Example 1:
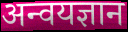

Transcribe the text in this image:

अन्वयज्ञान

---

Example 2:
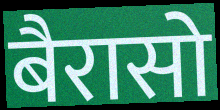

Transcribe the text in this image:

बैरासो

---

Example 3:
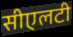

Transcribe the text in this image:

सीएलटी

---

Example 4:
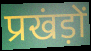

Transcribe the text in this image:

प्रखंड़ों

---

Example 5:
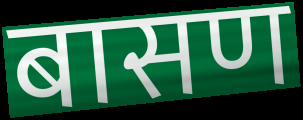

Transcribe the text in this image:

बासण